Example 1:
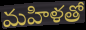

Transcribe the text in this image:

మహిళతో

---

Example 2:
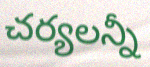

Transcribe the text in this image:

చర్యలన్నీ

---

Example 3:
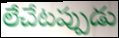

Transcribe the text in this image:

లేచేటప్పుడు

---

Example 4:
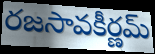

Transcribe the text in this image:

రజసావకీర్ణమ్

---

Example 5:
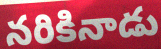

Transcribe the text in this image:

నరికినాడు